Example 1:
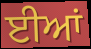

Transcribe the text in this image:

ਈਆਂ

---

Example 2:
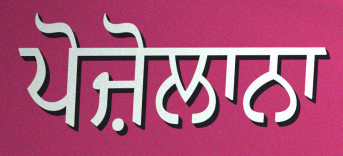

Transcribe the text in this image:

ਪੋਜ਼ੋਲਾਨਾ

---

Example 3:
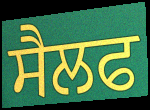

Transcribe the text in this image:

ਸੈਲਫ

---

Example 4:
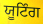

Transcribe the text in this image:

ਯੂਟਿੰਗ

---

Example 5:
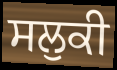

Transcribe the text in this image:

ਸਲੁਕੀ